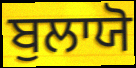
ਬੁਲਾਯੋ